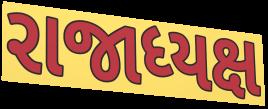
રાજાધ્યક્ષ